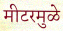
मीटरमुळे